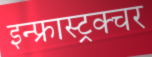
इन्फ्रास्ट्रक्चर